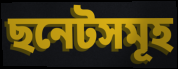
ছনেটসমূহ